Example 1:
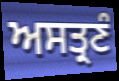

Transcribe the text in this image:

ਅਸਤ੍ਰਣੰ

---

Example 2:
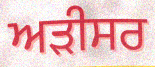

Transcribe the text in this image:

ਅੜੀਸਰ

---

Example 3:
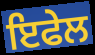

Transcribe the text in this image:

ਇਫੇਲ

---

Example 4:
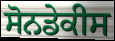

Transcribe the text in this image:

ਸੋਨਡੇਕੀਸ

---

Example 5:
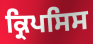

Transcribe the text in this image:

ਕ੍ਰਿਪਸਿਸ